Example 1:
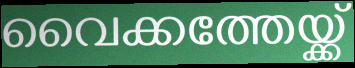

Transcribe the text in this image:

വൈക്കത്തേയ്ക്ക്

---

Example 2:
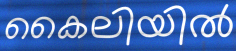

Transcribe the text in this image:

കൈലിയിൽ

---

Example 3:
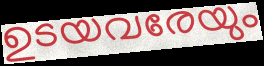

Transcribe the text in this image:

ഉടയവരേയും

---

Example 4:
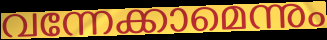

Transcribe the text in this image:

വന്നേക്കാമെന്നും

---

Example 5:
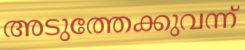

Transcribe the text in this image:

അടുത്തേക്കുവന്ന്